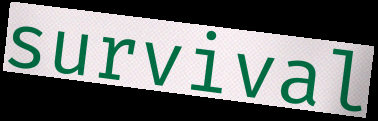
survival